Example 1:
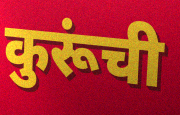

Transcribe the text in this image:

कुरूंची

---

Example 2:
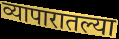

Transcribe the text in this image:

व्यापारातल्या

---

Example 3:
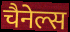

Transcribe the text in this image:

चैनेल्स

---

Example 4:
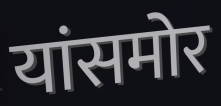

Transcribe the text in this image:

यांसमोर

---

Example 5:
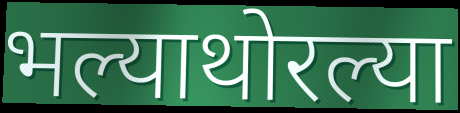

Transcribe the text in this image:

भल्याथोरल्या